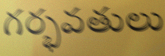
గర్భవతులు